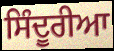
ਸਿੰਦੂਰੀਆ